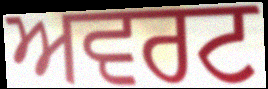
ਅਵਰਟ